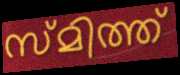
സ്മിത്ത്